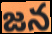
జన